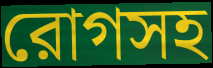
রোগসহ